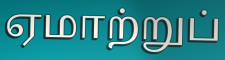
ஏமாற்றுப்